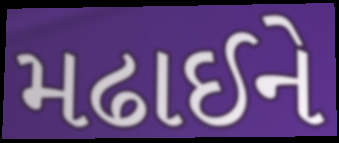
મઢાઈને